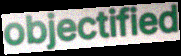
objectified